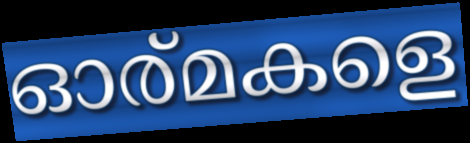
ഓര്മകളെ